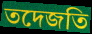
তদেজতি